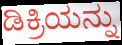
ಡಿಕ್ರಿಯನ್ನು